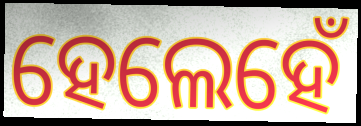
ହେଲେହେଁ